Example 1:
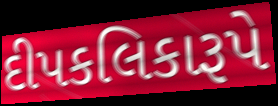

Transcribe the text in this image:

દીપકલિકારૂપે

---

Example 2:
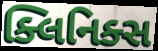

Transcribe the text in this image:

ક્લિનિક્સ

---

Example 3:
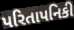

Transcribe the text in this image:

પરિતાપનિકી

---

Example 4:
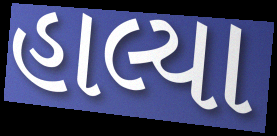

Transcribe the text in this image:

હાલ્યા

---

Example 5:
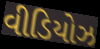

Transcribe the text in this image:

વીડિયોઝ